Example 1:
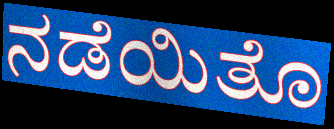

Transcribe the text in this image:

ನಡೆಯಿತೊ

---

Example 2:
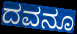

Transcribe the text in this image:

ದವನೂ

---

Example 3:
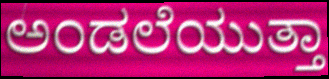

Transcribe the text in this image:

ಅಂಡಲೆಯುತ್ತಾ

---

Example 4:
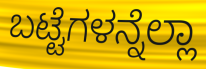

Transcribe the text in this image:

ಬಟ್ಟೆಗಳನ್ನೆಲ್ಲಾ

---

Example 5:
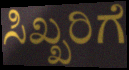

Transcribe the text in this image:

ಸಿಖ್ಖರಿಗೆ